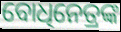
ବୋଧିନେତ୍ରଙ୍କ